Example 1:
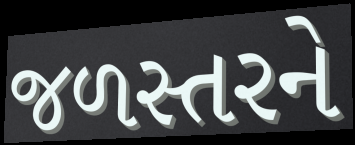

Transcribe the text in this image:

જળસ્તરને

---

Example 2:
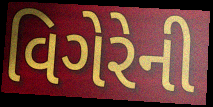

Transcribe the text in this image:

વિગેરેની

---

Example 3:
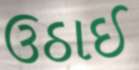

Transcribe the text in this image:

ઉઠાઈ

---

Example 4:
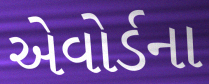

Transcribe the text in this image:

એવોર્ડના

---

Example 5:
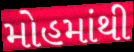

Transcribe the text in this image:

મોહમાંથી